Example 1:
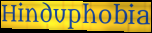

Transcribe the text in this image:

Hinduphobia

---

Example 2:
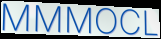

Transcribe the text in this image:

MMMOCL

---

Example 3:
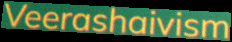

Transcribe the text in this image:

Veerashaivism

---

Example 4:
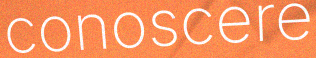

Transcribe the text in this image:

conoscere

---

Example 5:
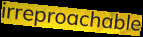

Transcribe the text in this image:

irreproachable